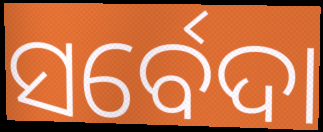
ସର୍ବେଦା